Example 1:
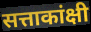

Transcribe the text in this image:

सत्ताकांक्षी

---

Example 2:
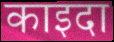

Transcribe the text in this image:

काइदा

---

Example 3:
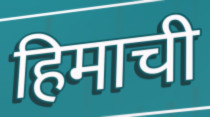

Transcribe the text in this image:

हिमाची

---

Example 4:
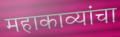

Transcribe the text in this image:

महाकाव्यांचा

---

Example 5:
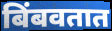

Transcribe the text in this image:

बिंबवतात